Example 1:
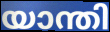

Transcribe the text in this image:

യാന്തി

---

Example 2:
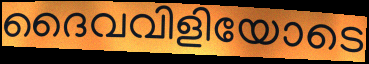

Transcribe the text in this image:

ദൈവവിളിയോടെ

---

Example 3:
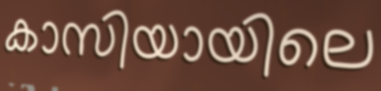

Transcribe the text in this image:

കാസിയായിലെ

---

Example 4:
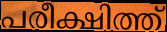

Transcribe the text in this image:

പരീക്ഷിത്ത്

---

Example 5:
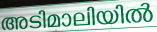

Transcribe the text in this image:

അടിമാലിയിൽ